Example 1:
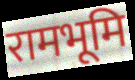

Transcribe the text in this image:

रामभूमि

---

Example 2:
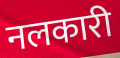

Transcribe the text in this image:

नलकारी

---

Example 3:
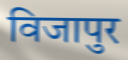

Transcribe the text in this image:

विजापुर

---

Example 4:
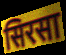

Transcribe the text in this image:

सिरसा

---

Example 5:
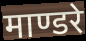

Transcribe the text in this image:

माण्डरे